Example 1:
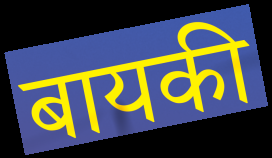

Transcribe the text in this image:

बायकी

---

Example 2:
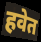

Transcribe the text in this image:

हवेत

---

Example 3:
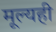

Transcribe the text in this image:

मूल्यही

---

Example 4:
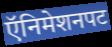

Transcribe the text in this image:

ऍनिमेशनपट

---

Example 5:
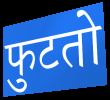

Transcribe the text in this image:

फुटतो